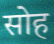
सोह